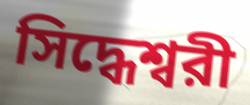
সিদ্ধেশ্বরী